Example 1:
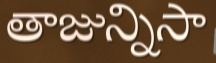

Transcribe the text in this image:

తాజున్నిసా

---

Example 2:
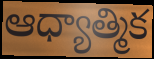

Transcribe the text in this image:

ఆధ్యాత్మిక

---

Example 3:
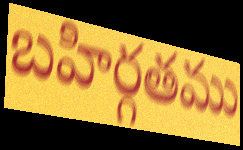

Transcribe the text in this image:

బహిర్గతము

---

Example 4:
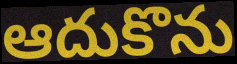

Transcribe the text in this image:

ఆదుకొను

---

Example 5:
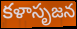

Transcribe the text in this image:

కళాసృజన